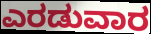
ಎರಡುವಾರ